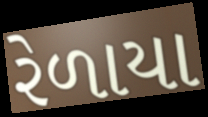
રેળાયા